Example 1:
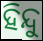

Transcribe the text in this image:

ହିନ୍ଦୁ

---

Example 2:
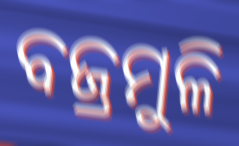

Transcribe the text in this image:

ବଜ୍ରମୁଳି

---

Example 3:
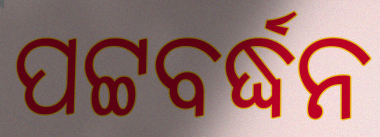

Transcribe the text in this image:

ପଟ୍ଟବର୍ଦ୍ଧନ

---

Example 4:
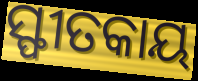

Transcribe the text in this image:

ସ୍ଫୀତକାୟ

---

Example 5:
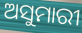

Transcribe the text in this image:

ଅସୁମାରୀ